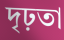
দৃঢ়তা